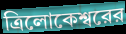
ত্রিলোকেশ্বরের